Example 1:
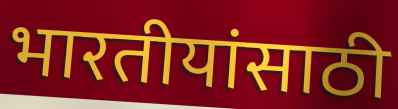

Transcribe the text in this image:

भारतीयांसाठी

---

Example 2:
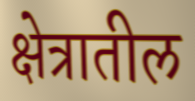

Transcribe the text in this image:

क्षेत्रातील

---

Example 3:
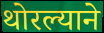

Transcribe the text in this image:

थोरल्याने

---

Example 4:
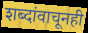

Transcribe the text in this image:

शब्दांवाचूनही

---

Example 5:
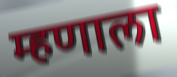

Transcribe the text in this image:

म्हणाला